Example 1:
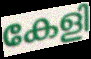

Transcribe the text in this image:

കേളി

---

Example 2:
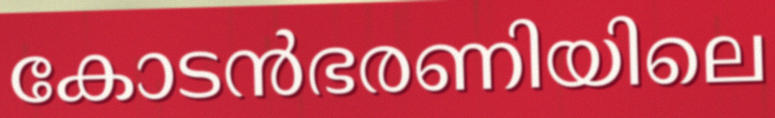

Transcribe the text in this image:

കോടൻഭരണിയിലെ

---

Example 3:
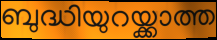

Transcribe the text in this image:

ബുദ്ധിയുറയ്ക്കാത്ത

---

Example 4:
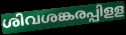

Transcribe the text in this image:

ശിവശങ്കരപ്പിളള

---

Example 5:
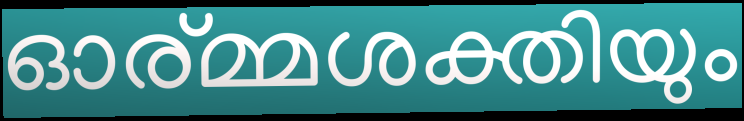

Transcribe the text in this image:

ഓര്മ്മശക്തിയും